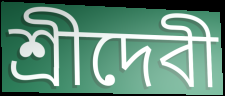
শ্রীদেবী